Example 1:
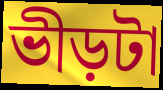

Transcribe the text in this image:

ভীড়টা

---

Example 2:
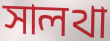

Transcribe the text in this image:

সালথা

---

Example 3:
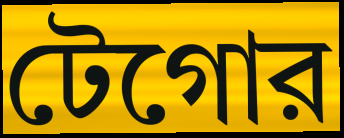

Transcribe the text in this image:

টেগোর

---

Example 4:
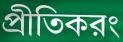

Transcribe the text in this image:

প্রীতিকরং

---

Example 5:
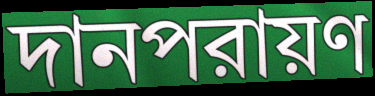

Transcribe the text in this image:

দানপরায়ণ